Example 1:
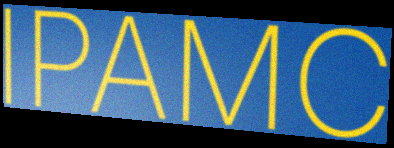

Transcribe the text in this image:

IPAMC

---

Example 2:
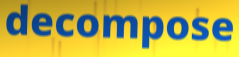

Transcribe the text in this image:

decompose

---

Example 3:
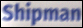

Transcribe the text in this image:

Shipman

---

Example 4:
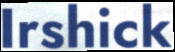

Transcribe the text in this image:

Irshick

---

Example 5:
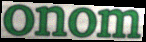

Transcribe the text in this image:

onom